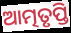
ଆତ୍ମତୃପ୍ତି